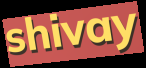
shivay